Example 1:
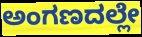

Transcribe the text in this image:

ಅಂಗಣದಲ್ಲೇ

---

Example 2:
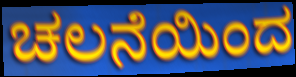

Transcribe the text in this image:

ಚಲನೆಯಿಂದ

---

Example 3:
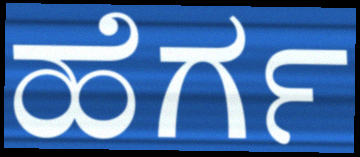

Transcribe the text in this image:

ಹೆರ್ಗ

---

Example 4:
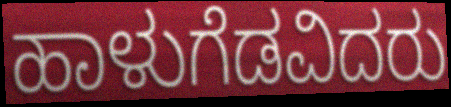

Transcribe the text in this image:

ಹಾಳುಗೆಡವಿದರು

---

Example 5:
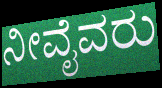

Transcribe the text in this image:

ನೀವೈವರು